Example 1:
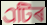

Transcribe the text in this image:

এটিৰ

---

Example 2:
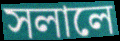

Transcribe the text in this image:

সলালে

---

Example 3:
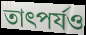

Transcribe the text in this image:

তাৎপৰ্যও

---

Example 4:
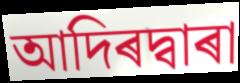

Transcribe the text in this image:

আদিৰদ্বাৰা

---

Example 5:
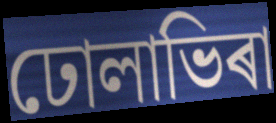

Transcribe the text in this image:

ঢোলাভিৰা